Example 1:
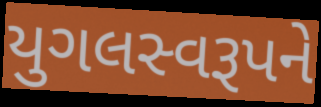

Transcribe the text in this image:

યુગલસ્વરૂપને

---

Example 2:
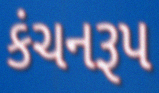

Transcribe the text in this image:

કંચનરૂપ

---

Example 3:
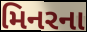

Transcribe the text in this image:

મિનરના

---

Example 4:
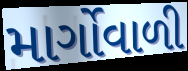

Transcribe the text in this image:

માર્ગોવાળી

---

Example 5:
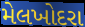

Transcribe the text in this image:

મેલખોદરા